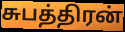
சுபத்திரன்